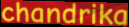
chandrika